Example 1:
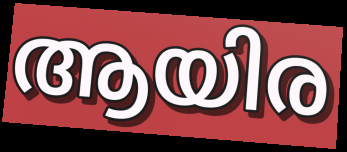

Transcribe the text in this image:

ആയിര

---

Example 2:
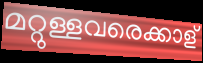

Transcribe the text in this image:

മറ്റുള്ളവരെക്കാള്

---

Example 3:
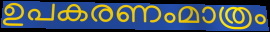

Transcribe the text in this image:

ഉപകരണംമാത്രം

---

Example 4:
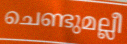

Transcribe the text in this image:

ചെണ്ടുമല്ലീ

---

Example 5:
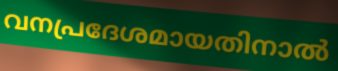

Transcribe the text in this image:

വനപ്രദേശമായതിനാൽ